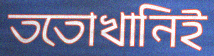
ততোখানিই